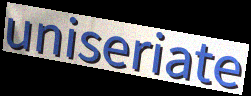
uniseriate